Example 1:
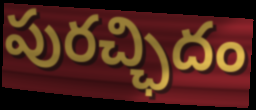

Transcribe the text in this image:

పురచ్ఛిదం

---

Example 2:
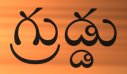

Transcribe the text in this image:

గ్రుడ్డు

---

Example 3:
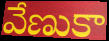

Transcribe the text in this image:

వేణుకా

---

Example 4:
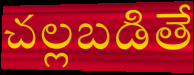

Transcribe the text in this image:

చల్లబడితే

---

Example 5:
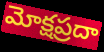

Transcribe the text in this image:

మోక్షప్రదా